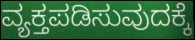
ವ್ಯಕ್ತಪಡಿಸುವುದಕ್ಕೆ